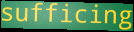
sufficing